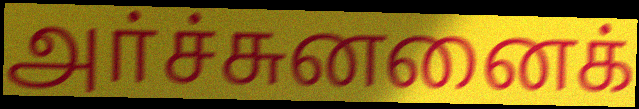
அர்ச்சுனனைக்